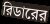
রিডারের